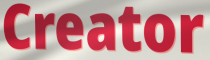
Creator